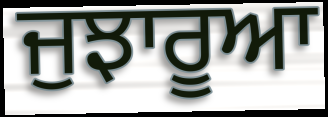
ਜੁਝਾਰੂਆ